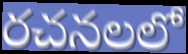
రచనలలో